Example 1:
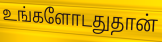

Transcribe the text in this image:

உங்களோடதுதான்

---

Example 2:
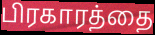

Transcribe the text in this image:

பிரகாரத்தை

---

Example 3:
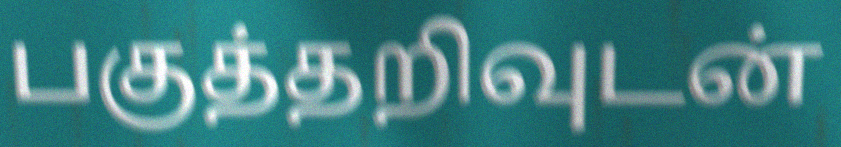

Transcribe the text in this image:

பகுத்தறிவுடன்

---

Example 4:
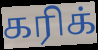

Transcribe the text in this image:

கரிக்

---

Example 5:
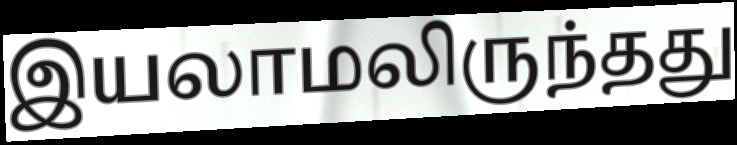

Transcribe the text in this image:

இயலாமலிருந்தது